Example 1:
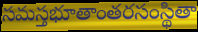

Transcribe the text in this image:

సమస్తభూతాంతరసంస్థితా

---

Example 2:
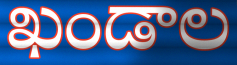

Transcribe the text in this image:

ఖండాల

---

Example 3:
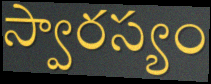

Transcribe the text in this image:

స్వారస్యం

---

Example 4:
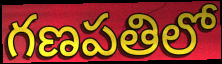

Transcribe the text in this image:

గణపతిలో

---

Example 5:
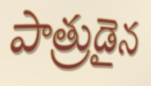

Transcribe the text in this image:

పాత్రుడైన